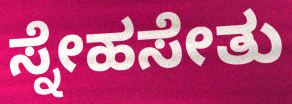
ಸ್ನೇಹಸೇತು